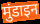
मुंडाइन